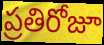
ప్రతిరోజూ